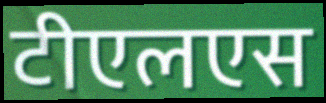
टीएलएस